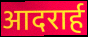
आदरार्ह